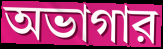
অভাগার